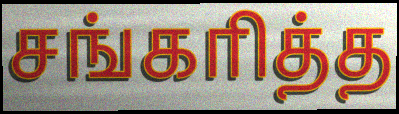
சங்கரித்த